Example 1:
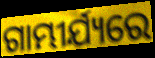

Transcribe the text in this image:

ଗାମ୍ଭୀର୍ଯ୍ୟରେ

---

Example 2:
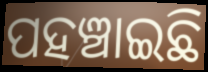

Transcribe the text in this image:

ପହଞ୍ଚାଇଛି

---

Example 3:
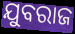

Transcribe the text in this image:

ଯୁବରାଜ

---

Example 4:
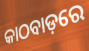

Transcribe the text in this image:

କାଠବାଡ଼ରେ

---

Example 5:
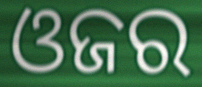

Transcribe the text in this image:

ଓଜର